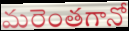
మరెంతగానో